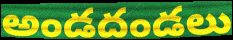
అండదండలు